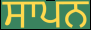
ਸਾਪਨ